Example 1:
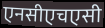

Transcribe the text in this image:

एनसीएचएसी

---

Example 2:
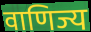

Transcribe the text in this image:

वाणिज्य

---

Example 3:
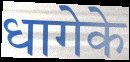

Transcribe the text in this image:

धागेके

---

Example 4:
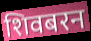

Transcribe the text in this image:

शिवबरन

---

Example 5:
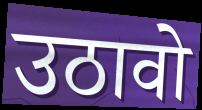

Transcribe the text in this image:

उठावो